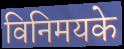
विनिमयके